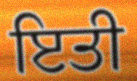
ਇਤੀ